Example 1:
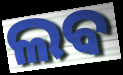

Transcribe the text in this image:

ଲବ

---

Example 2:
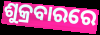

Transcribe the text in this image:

ଶୁକ୍ରବାରରେ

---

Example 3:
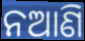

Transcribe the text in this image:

ନଆଣି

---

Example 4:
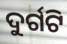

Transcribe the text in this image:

ଦୁର୍ଗଟି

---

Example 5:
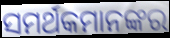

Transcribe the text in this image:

ସମର୍ଥକମାନଙ୍କର